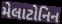
મેલાટોનિન